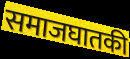
समाजघातकी